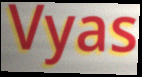
Vyas